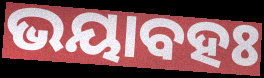
ଭୟାବହଃ